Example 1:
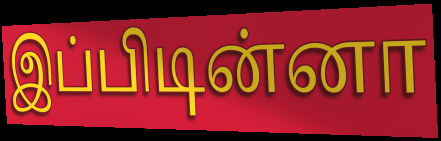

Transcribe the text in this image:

இப்பிடின்னா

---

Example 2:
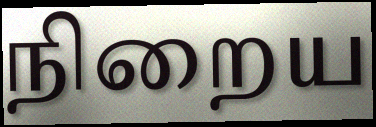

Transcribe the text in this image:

நிறைய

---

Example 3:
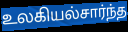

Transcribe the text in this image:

உலகியல்சார்ந்த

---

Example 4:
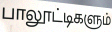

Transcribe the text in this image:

பாலூட்டிகளும்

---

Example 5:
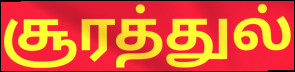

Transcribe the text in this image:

சூரத்துல்